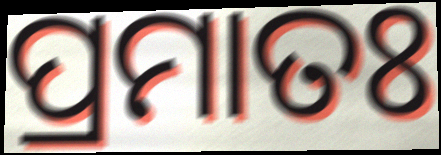
ପ୍ରମାତଃ